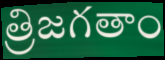
త్రిజగతాం